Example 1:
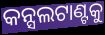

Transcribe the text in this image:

କନ୍ସଲଟାଣ୍ଟକୁ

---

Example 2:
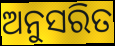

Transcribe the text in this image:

ଅନୁସରିତ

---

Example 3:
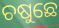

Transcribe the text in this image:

ଚଷୁଛେ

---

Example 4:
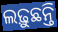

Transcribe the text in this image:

ଲଢ଼ୁଛନ୍ତି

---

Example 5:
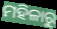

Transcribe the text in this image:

ମହିଳାରୁ